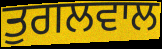
ਤੁਗਲਵਾਲ